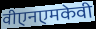
वीएनएमकेवी